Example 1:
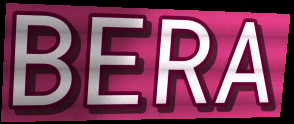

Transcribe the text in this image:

BERA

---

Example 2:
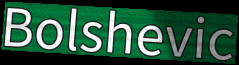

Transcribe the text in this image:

Bolshevic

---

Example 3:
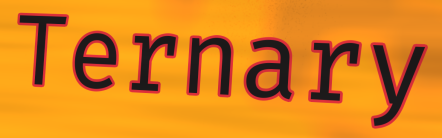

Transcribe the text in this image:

Ternary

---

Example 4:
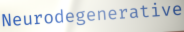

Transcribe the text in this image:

Neurodegenerative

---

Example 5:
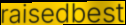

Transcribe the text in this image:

raisedbest